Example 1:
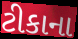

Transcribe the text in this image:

ટીકાના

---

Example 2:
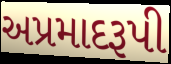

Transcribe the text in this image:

અપ્રમાદરૂપી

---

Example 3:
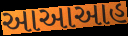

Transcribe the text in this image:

આઆઆહ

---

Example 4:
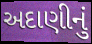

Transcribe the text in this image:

અદાણીનું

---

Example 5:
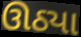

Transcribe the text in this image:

ઊઠ્યા